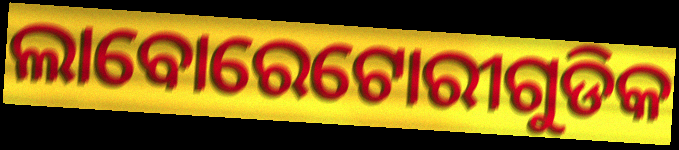
ଲାବୋରେଟୋରୀଗୁଡିକ